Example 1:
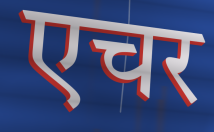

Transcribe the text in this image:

एचर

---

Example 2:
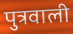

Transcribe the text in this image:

पुत्रवाली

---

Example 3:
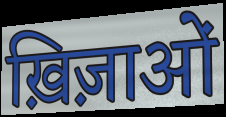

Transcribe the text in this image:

ख़िज़ाओं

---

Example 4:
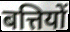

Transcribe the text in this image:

बत्तियों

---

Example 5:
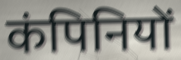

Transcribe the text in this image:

कंपिनियों